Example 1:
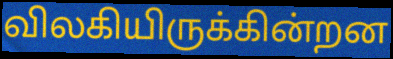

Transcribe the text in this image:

விலகியிருக்கின்றன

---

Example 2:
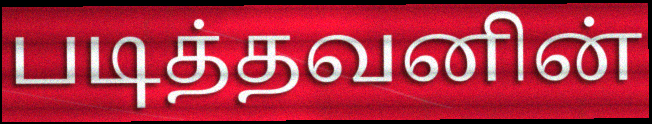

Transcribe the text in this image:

படித்தவனின்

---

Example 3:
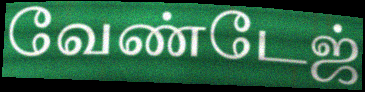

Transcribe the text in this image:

வேண்டேஜ்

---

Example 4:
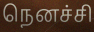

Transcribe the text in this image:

நெனச்சி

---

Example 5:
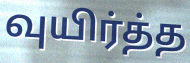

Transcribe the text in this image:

வுயிர்த்த